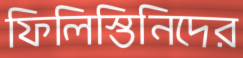
ফিলিস্তিনিদের